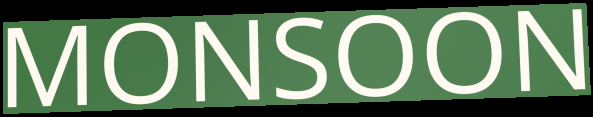
MONSOON